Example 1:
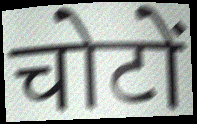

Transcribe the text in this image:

चोटों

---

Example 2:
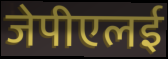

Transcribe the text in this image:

जेपीएलई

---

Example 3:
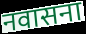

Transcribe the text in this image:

नवासना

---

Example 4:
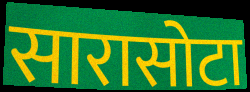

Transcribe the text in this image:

सारासोटा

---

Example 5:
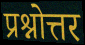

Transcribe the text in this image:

प्रश्नोत्तर